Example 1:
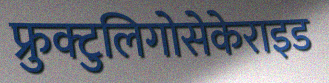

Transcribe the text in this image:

फ्रुक्टुलिगोसेकेराइड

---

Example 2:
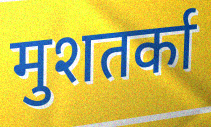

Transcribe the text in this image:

मुशतर्का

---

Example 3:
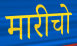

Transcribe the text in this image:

मारीचो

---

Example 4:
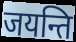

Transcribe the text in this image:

जयन्ति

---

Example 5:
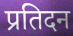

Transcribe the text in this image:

प्रतिदन